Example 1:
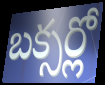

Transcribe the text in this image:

బక్సర్లో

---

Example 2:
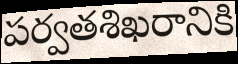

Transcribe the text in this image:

పర్వతశిఖరానికి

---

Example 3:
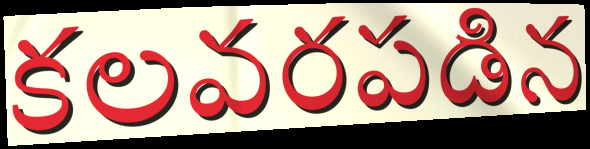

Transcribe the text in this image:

కలవరపడిన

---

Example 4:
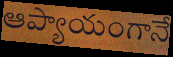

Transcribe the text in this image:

ఆప్యాయంగానే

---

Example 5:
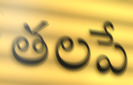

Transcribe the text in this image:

తలపే